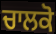
ਚਾਲਕੋ